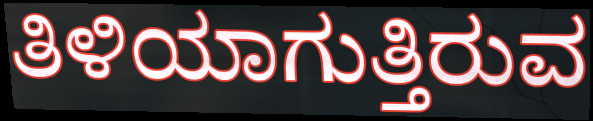
ತಿಳಿಯಾಗುತ್ತಿರುವ